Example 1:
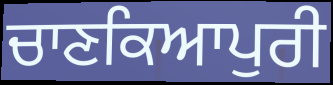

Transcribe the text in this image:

ਚਾਣਕਿਆਪੁਰੀ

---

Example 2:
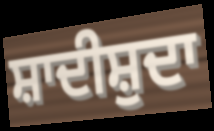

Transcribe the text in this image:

ਸ਼ਾਦੀਸ਼ੁਦਾ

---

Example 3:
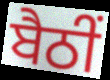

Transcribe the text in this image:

ਬੈਠੀਂ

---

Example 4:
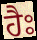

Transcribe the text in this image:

ਹੈਃ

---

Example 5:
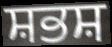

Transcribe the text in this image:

ਸ਼ਭਸ਼